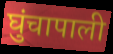
घुंचापाली